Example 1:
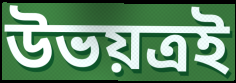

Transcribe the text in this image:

উভয়ত্রই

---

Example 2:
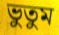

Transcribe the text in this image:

ভুতুম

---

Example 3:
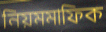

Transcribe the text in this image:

নিয়মমাফিক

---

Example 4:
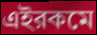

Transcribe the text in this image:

এইরকমে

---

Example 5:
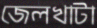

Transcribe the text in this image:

জেলখাটা